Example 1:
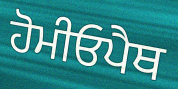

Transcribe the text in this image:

ਹੋਮੀਓਪੈਥ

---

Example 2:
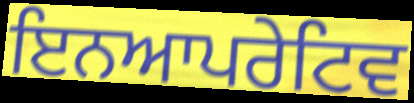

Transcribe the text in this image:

ਇਨਆਪਰੇਟਿਵ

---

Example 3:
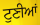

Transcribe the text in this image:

ਟੁਣੀਆਂ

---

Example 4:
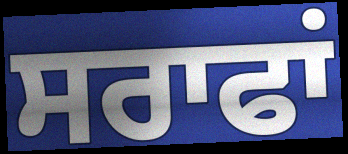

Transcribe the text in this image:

ਸਰਾਫਾਂ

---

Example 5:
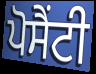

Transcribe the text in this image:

ਪੋਸੈਂਟੀ